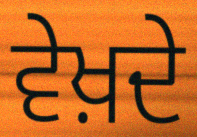
ਵੇਖ਼ਦੇ